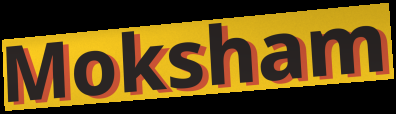
Moksham